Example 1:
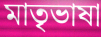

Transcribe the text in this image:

মাতৃভাষা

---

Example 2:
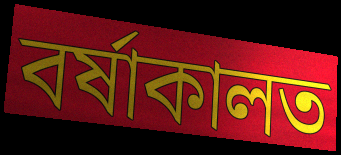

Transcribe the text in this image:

বৰ্ষাকালত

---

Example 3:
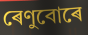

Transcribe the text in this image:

ৰেণুবোৰে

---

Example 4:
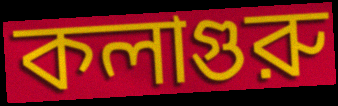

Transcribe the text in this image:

কলাগুৰু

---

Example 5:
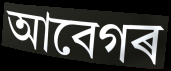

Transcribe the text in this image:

আবেগৰ